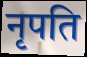
नृपति